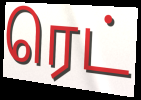
ரெட்